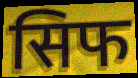
सिफ